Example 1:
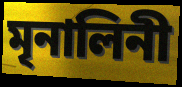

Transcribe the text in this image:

মৃনালিনী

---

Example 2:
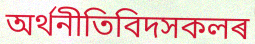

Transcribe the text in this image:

অৰ্থনীতিবিদসকলৰ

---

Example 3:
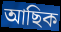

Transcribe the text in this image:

আছিক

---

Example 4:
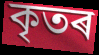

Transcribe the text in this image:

কৃতৰ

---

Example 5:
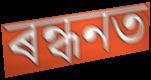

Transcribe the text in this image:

ৰন্ধনত